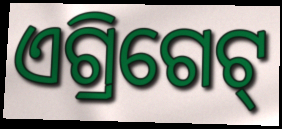
ଏଗ୍ରିଗେଟ୍